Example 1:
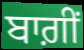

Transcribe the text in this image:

ਬਾਗ਼ੀਂ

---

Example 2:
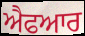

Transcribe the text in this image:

ਐਫਆਰ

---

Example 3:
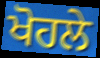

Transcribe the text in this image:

ਖੋਹਲੇ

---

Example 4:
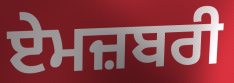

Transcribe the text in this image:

ਏਮਜ਼ਬਰੀ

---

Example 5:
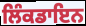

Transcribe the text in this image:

ਲਿੰਕਡਾਇਨ